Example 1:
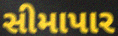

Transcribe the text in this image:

સીમાપાર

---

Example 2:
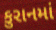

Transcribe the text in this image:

કુરાનમાં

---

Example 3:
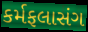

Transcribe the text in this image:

કર્મફલાસંગ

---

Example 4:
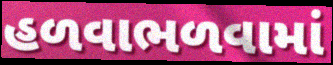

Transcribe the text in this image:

હળવાભળવામાં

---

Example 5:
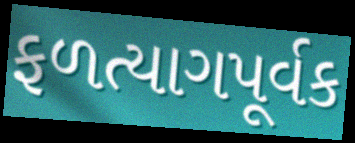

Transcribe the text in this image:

ફળત્યાગપૂર્વક